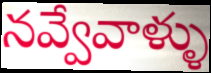
నవ్వేవాళ్ళు